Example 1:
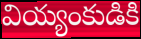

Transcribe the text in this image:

వియ్యంకుడికి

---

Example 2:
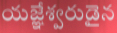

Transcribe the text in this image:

యజ్ఞేశ్వరుడైన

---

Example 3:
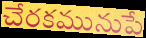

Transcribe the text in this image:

చేరకమునుపే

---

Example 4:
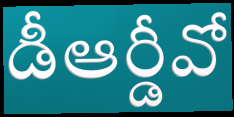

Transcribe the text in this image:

డీఆర్డీవో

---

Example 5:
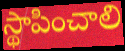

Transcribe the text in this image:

స్థాపించాలి